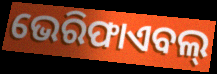
ଭେରିଫାଏବଲ୍